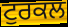
ਟੁਰਕਲ